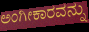
ಅಂಗೀಕಾರವನ್ನು